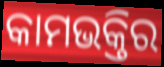
କାମଭକ୍ତିର